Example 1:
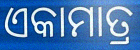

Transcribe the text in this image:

ଏକାମାତ୍ର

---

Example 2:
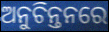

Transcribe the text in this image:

ଅନୁଚିନ୍ତନରେ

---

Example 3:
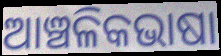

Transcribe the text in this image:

ଆଞ୍ଚଳିକଭାଷା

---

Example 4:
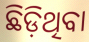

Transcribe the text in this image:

ଛିଡ଼ିଥିବା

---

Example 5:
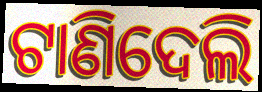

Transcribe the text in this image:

ଟାଣିଦେଲି